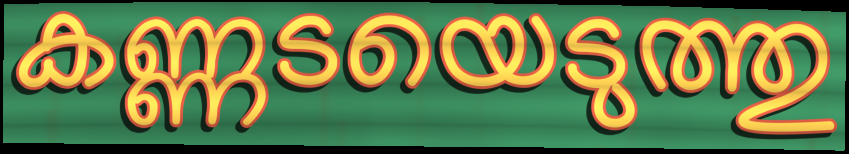
കണ്ണടയെടുത്തു